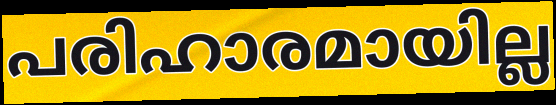
പരിഹാരമായില്ല